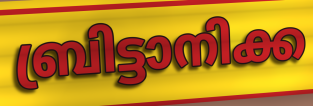
ബ്രിട്ടാനിക്ക